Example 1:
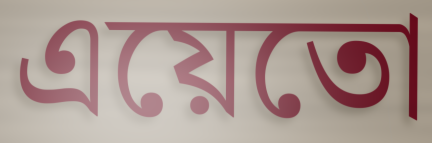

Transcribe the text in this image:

এয়েতো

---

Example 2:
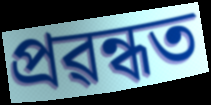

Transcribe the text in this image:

প্ৰৱন্ধত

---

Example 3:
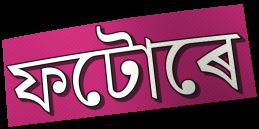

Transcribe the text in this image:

ফটোৰে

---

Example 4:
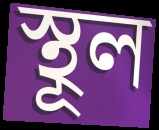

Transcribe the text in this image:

স্থূল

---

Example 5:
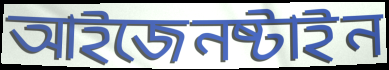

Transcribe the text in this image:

আইজেনষ্টাইন